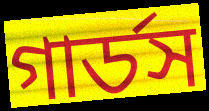
গার্ডস